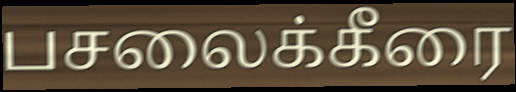
பசலைக்கீரை